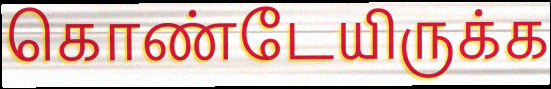
கொண்டேயிருக்க